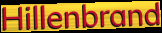
Hillenbrand